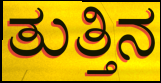
ತುತ್ತಿನ